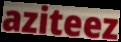
aziteez